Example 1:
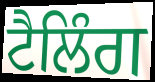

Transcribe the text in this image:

ਟੈਲਿੰਗ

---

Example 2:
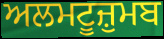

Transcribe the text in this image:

ਅਲਮਟੂਜ਼ੁਮਬ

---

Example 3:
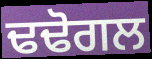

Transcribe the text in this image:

ਢਢੋਗਲ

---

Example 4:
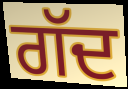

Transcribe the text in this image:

ਗੱਦ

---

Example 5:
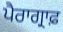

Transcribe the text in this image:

ਪੈਰਾਗ੍ਰਾਫ਼